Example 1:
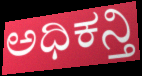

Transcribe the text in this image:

ಅಧಿಕನ್ತಿ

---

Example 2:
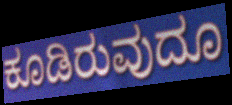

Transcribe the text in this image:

ಕೂಡಿರುವುದೂ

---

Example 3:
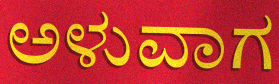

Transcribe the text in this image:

ಅಳುವಾಗ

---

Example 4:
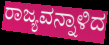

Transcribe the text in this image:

ರಾಜ್ಯವನ್ನಾಳಿದ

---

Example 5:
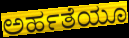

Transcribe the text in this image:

ಅರ್ಹತೆಯೂ